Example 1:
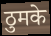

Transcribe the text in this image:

ठुमके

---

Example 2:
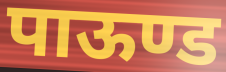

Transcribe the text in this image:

पाऊण्ड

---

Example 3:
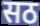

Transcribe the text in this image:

सठ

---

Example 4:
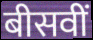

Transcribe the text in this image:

बीसवीं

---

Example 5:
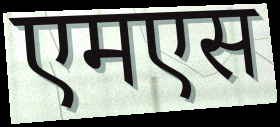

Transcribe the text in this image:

एमएस